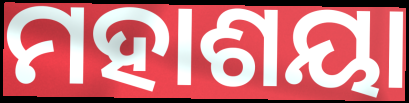
ମହାଶୟା